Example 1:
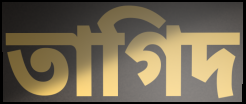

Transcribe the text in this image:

তাগিদ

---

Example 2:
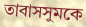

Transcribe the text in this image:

তাবাসসুমকে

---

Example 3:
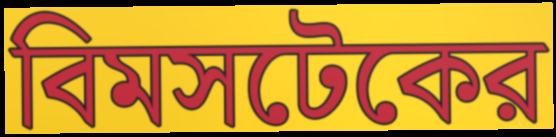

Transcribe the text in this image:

বিমসটেকের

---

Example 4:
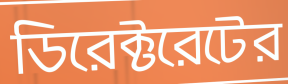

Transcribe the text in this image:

ডিরেক্টরেটের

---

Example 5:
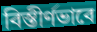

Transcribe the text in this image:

বিস্তীর্ণভাবে